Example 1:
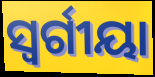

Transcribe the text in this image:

ସ୍ବର୍ଗୀୟା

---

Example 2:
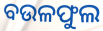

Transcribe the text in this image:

ବଉଳଫୁଲ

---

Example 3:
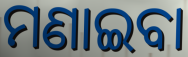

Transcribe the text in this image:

ମଣାଇବା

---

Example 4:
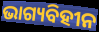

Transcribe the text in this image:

ଭାଗ୍ୟବିହୀନ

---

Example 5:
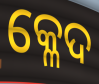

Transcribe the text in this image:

କ୍ଳେଦ